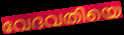
വേദവതിയെ